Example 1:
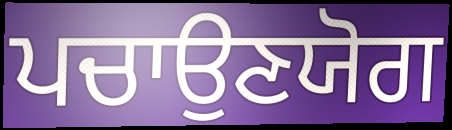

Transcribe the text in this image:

ਪਚਾਉਣਯੋਗ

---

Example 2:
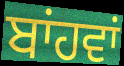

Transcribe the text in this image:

ਬਾਂਹਵਾਂ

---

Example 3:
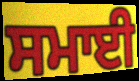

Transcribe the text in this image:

ਸਮਾਈ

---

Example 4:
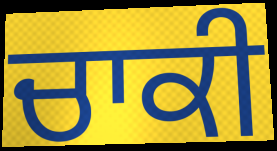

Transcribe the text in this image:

ਚਾਕੀ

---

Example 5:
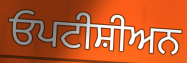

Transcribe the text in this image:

ਓਪਟੀਸ਼ੀਅਨ